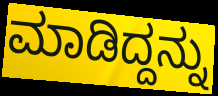
ಮಾಡಿದ್ದನ್ನು